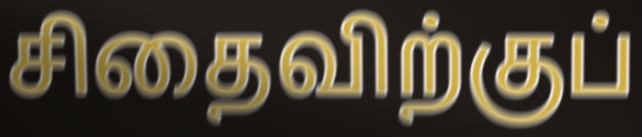
சிதைவிற்குப்